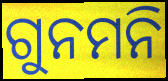
ଗୁନମନି